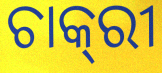
ଚାକ୍‌ରୀ